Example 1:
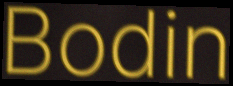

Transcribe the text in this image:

Bodin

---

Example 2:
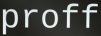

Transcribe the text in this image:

proff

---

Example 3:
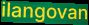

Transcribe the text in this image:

ilangovan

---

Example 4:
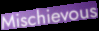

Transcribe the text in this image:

Mischievous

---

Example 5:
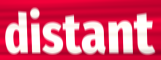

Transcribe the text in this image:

distant